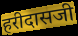
हरीदासजी